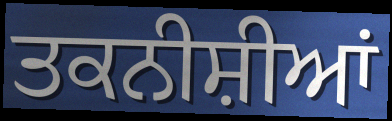
ਤਕਨੀਸ਼ੀਆਂ